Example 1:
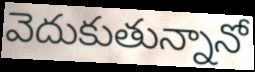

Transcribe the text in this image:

వెదుకుతున్నానో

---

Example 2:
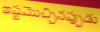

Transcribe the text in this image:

ఇష్టమొచ్చినప్పుడు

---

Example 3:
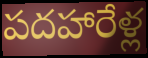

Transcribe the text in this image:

పదహారేళ్ల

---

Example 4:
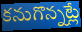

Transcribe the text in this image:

కనుగొన్నట్లే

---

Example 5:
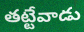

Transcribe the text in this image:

తట్టేవాడు